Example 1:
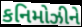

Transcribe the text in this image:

કનિમોઝીને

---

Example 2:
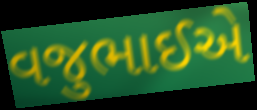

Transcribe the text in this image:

વજુભાઈએ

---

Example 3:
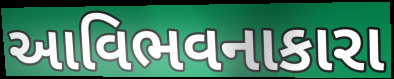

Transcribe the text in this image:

આવિભવનાકારા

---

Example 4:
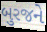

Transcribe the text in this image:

બુરજને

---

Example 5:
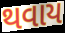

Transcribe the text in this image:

થવાય